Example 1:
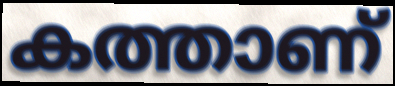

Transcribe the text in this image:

കത്താണ്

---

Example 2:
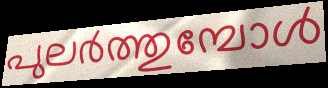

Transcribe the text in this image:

പുലർത്തുമ്പോൾ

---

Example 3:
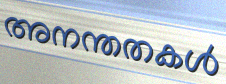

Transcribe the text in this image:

അനന്തതകൾ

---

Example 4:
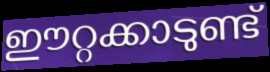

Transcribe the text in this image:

ഈറ്റക്കാടുണ്ട്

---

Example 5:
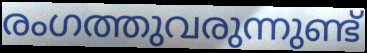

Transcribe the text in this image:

രംഗത്തുവരുന്നുണ്ട്